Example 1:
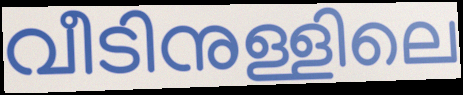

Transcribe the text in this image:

വീടിനുള്ളിലെ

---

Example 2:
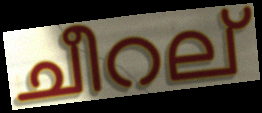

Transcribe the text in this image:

ചീറല്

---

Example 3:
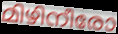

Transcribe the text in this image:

മിഴിനീരോ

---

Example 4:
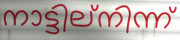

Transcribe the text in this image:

നാട്ടില്നിന്ന്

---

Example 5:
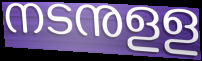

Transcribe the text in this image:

നടനുളള